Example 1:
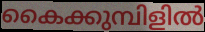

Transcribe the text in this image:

കൈക്കുമ്പിളിൽ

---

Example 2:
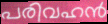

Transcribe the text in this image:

പരിവഹൻ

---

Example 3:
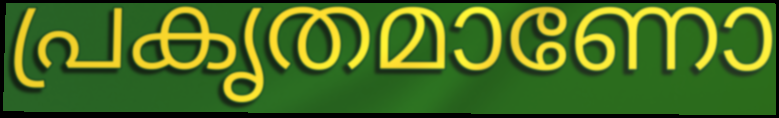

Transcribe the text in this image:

പ്രകൃതമാണോ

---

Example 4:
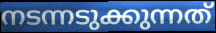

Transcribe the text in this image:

നടന്നടുക്കുന്നത്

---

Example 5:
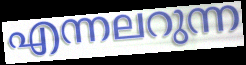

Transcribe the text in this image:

എന്നലറുന്ന